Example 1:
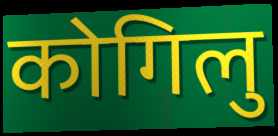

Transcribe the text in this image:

कोगिलु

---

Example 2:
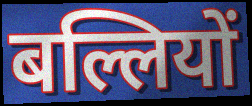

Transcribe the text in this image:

बल्लियों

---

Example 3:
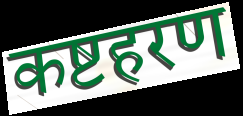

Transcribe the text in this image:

कष्टहरण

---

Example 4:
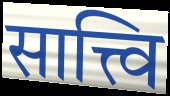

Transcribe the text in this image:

सात्त्वि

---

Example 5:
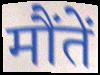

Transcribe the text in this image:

मौंतें